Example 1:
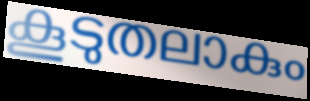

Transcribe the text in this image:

കൂടുതലാകും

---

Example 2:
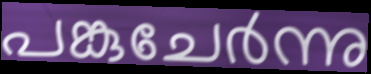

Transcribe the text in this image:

പങ്കുചേർന്നു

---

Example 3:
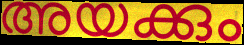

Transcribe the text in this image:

അയക്കും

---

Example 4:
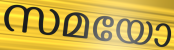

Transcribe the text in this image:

സമയോ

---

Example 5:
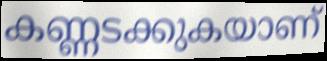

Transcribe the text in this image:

കണ്ണടക്കുകയാണ്